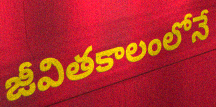
జీవితకాలంలోనే